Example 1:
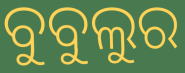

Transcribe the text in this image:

ବୁବୁଲୁର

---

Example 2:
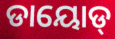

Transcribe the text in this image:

ଡାୟୋଡ୍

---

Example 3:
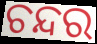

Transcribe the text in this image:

ଚନ୍ଦର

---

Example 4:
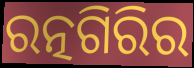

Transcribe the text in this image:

ରତ୍ନଗିରିର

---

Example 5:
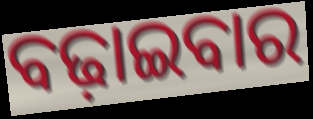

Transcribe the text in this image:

ବଢ଼ାଇବାର